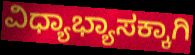
ವಿಧ್ಯಾಭ್ಯಾಸಕ್ಕಾಗಿ